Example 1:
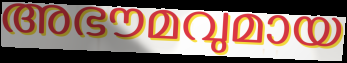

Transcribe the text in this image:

അഭൗമവുമായ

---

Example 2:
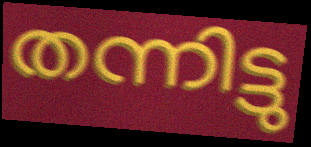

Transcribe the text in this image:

തന്നിട്ടു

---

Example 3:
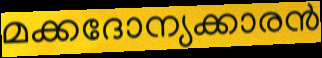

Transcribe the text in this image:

മക്കദോന്യക്കാരൻ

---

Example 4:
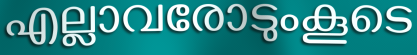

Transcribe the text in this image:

എല്ലാവരോടുംകൂടെ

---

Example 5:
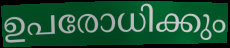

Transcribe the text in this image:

ഉപരോധിക്കും